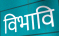
विभावि